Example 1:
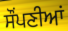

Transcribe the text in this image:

ਸੌਂਪਣੀਆਂ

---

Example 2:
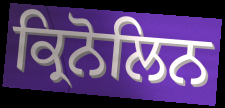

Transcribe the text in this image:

ਕ੍ਰਿਨੋਲਿਨ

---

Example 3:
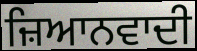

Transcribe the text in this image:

ਜ਼ਿਆਨਵਾਦੀ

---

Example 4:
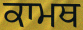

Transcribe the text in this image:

ਕਾਮਥ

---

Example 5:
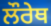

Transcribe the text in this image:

ਲੌਰੇਥ